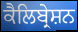
ਕੈਲਿਬ੍ਰੇਸ਼ਨ